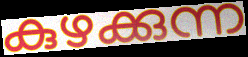
കുഴക്കുന്ന